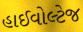
હાઈવોલ્ટેજ